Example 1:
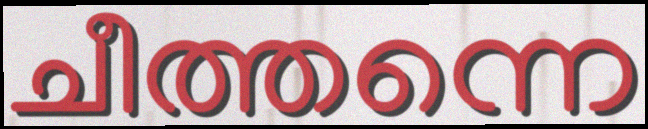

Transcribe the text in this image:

ചീത്തന്നെ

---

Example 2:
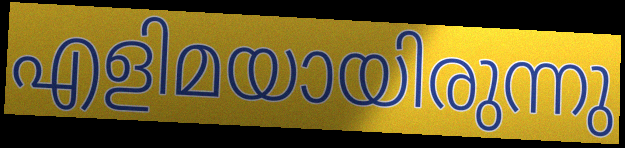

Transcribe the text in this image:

എളിമയായിരുന്നു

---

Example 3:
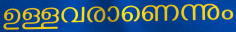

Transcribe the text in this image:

ഉള്ളവരാണെന്നും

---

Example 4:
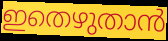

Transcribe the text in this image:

ഇതെഴുതാൻ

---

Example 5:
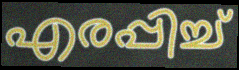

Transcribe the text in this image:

എരപ്പിച്ച്